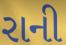
રાની